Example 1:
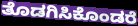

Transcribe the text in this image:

ತೊಡಗಿಸಿಕೊಂಡರೆ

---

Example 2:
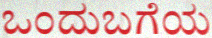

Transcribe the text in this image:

ಒಂದುಬಗೆಯ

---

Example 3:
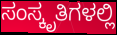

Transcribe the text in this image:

ಸಂಸ್ಕೃತಿಗಳಲ್ಲಿ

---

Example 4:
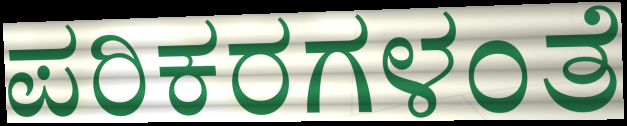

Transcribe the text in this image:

ಪರಿಕರಗಳಂತೆ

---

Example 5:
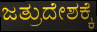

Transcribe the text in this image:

ಜತ್ರುದೇಶಕ್ಕೆ